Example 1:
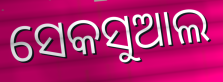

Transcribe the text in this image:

ସେକସୁଆଲ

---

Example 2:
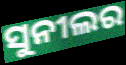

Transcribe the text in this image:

ସୁନୀଲର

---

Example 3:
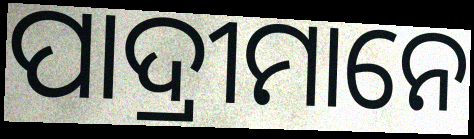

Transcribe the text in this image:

ପାଦ୍ରୀମାନେ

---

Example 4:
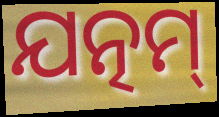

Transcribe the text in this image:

ଯତ୍ନମ୍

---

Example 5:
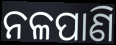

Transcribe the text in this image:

ନଳପାଣି